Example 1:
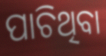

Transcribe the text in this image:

ପାଚିଥିବା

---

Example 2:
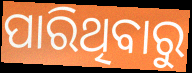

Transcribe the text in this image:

ପାରିଥିବାରୁ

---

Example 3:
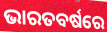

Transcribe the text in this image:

ଭାରତବର୍ଷରେ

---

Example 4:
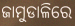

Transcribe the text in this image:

ଜାମୁଡାଳିରେ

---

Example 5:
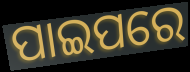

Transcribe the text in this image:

ପାଇପରେ